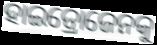
ହାଇଡ୍ରୋଜେନକୁ